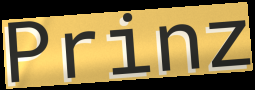
Prinz